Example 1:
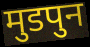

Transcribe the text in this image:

मुडपुन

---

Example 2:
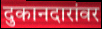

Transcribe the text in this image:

दुकानदारांवर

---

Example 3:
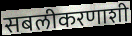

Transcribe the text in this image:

सबलीकरणाशी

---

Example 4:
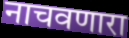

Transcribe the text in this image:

नाचवणारा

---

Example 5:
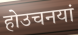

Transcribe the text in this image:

होउचनयां